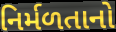
નિર્મળતાનો